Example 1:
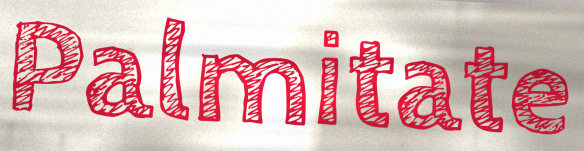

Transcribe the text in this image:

Palmitate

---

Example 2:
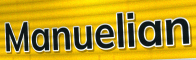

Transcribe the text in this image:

Manuelian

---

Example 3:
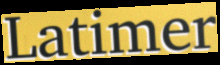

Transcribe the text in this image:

Latimer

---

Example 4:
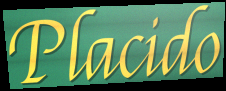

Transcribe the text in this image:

Placido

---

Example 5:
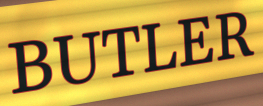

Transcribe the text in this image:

BUTLER